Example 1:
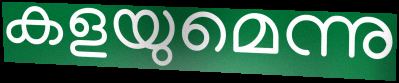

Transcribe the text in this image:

കളയുമെന്നു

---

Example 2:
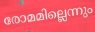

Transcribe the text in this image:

രോമമില്ലെന്നും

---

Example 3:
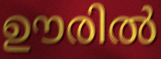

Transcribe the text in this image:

ഊരിൽ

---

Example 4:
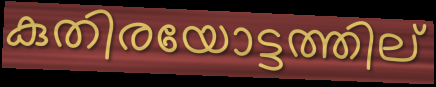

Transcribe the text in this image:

കുതിരയോട്ടത്തില്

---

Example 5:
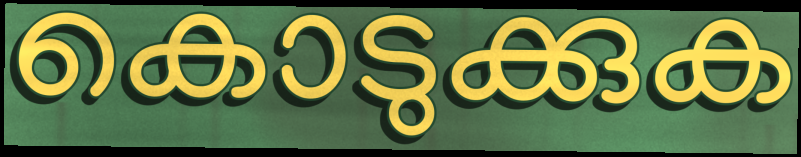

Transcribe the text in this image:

കൊടുക്കുക